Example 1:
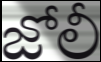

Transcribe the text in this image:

జోలీ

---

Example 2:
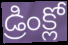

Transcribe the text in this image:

డ్రింక్లో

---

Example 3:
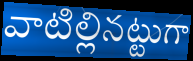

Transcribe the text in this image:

వాటిల్లినట్టుగా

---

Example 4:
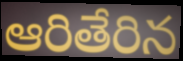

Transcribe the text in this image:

ఆరితేరిన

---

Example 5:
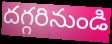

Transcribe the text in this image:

దగ్గరినుండి